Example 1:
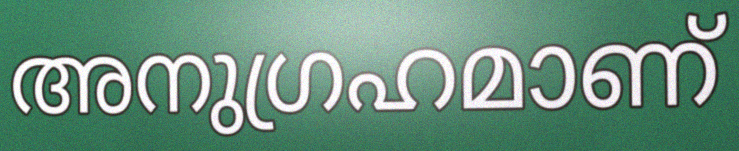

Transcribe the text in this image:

അനുഗ്രഹമാണ്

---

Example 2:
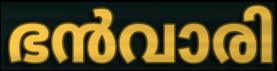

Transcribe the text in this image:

ഭൻവാരി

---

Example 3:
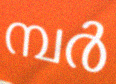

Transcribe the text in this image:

മ്പർ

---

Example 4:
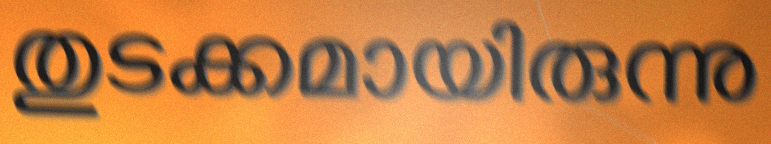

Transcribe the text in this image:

തുടക്കമായിരുന്നു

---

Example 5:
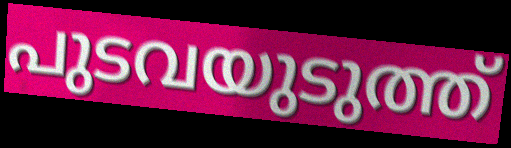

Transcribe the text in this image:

പുടവയുടുത്ത്